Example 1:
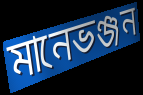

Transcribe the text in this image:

মানেভঞ্জন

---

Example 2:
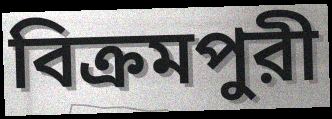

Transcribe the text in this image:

বিক্রমপুরী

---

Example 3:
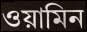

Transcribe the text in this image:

ওয়ামিন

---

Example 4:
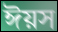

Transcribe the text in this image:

ঈয়স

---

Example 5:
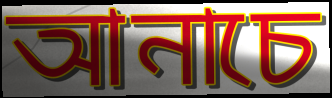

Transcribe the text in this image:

আনাচে